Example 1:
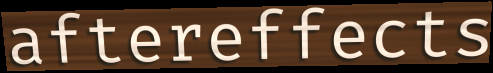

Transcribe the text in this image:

aftereffects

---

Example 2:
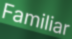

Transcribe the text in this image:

Familiar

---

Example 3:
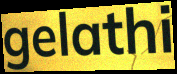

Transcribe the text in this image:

gelathi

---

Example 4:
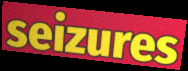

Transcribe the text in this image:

seizures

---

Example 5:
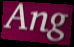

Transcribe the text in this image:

Ang